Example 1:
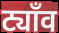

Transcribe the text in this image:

ट्याँव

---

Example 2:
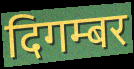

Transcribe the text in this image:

दिगम्बर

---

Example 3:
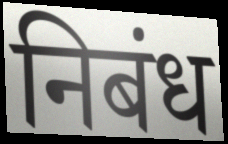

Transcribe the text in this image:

निबंध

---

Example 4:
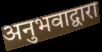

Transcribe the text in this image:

अनुभवाद्वारा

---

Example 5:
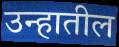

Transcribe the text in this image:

उन्हातील